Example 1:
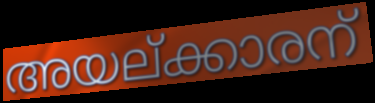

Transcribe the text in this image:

അയല്ക്കാരന്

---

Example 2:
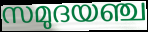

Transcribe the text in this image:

സമുദയഞ്ച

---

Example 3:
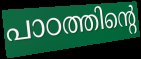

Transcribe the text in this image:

പാഠത്തിന്റെ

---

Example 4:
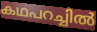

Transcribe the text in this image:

കഥപറച്ചിൽ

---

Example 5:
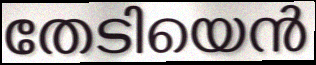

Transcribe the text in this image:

തേടിയെൻ